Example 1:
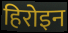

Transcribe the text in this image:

हिरोइन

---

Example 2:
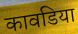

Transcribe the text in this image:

कावडिया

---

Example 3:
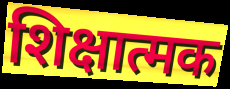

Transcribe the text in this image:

शिक्षात्मक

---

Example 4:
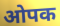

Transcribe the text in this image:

ओपक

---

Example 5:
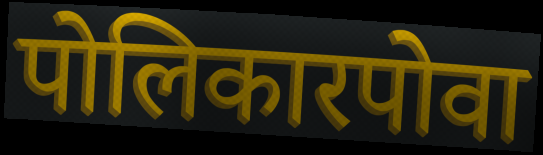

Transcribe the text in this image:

पोलिकारपोवा